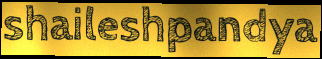
shaileshpandya